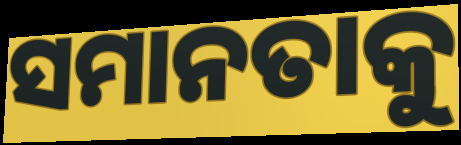
ସମାନତାକୁ